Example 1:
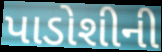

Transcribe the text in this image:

પાડોશીની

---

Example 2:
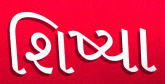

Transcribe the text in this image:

શિષ્યા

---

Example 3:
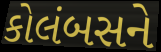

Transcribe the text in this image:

કોલંબસને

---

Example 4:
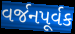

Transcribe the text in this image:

વર્જનપૂર્વક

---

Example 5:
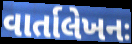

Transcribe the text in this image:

વાર્તાલેખનઃ